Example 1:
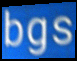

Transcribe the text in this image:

bgs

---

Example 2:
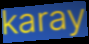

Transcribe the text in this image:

karay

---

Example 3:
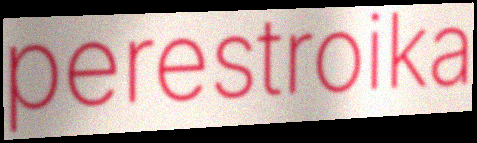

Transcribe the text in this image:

perestroika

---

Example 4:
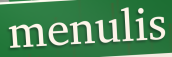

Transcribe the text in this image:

menulis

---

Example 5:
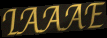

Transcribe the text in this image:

IAAAE